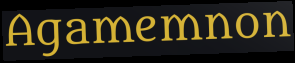
Agamemnon